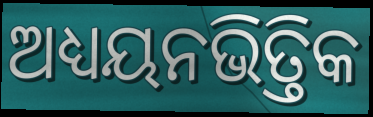
ଅଧ୍ୟୟନଭିତ୍ତିକ